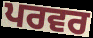
ਪਰਵਰ